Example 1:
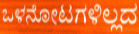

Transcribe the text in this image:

ಒಳನೋಟಗಳಿಲ್ಲದ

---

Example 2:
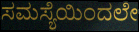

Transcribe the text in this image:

ಸಮಸ್ಯೆಯಿಂದಲೇ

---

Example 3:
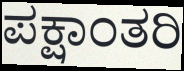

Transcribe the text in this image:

ಪಕ್ಷಾಂತರಿ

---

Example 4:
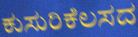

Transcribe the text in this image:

ಕುಸುರಿಕೆಲಸದ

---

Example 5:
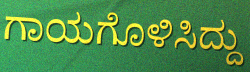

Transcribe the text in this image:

ಗಾಯಗೊಳಿಸಿದ್ದು